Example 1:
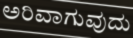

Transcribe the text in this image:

ಅರಿವಾಗುವುದು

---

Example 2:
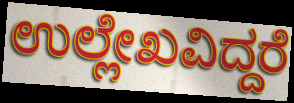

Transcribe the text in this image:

ಉಲ್ಲೇಖವಿದ್ದರೆ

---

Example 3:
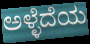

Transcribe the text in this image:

ಅಳ್ಳೆದೆಯ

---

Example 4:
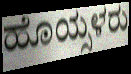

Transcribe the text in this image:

ಹೊಯ್ಸಳರು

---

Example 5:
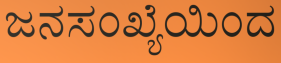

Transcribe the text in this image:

ಜನಸಂಖ್ಯೆಯಿಂದ